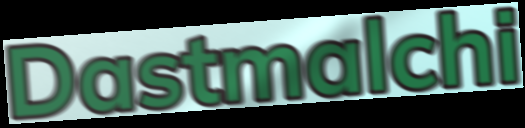
Dastmalchi